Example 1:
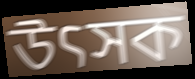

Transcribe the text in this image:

উৎসক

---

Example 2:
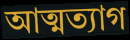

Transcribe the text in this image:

আত্মত্যাগ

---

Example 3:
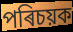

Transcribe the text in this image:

পৰিচয়ক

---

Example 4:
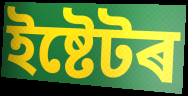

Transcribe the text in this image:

ইষ্টেটৰ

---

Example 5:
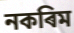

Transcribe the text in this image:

নকৰিম